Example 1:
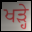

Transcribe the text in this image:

ਖਡ਼੍ਹੇ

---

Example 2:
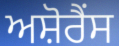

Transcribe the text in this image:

ਅਸ਼ੋਰੈਂਸ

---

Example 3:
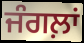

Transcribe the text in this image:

ਜੰਗਲ਼ਾਂ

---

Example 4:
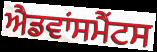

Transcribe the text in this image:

ਐਡਵਾਂਸਮੈਂਟਸ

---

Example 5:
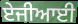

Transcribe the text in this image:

ਏਜੀਆਈ